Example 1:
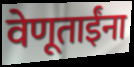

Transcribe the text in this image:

वेणूताईंना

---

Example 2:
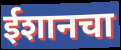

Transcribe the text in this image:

ईशानचा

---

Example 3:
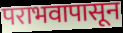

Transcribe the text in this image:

पराभवापासून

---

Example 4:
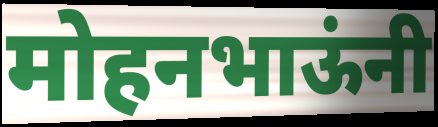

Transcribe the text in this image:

मोहनभाऊंनी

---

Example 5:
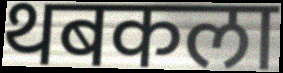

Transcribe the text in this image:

थबकला